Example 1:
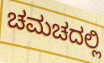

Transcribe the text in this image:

ಚಮಚದಲ್ಲಿ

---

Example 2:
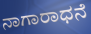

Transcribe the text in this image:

ನಾಗಾರಾಧನೆ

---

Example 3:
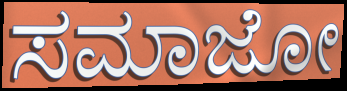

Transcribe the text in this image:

ಸಮಾಜೋ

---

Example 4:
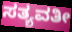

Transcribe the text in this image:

ಸತ್ಯವತೀ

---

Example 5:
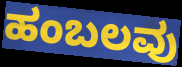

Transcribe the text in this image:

ಹಂಬಲವು